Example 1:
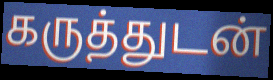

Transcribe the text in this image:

கருத்துடன்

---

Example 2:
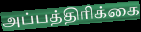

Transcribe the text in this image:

அப்பத்திரிக்கை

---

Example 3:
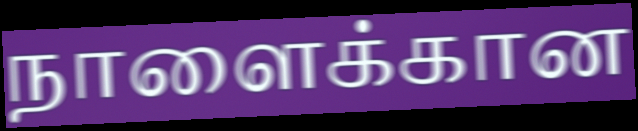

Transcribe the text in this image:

நாளைக்கான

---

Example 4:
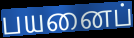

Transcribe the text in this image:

பயனைப்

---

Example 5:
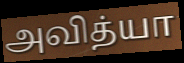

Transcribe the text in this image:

அவித்யா